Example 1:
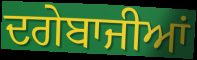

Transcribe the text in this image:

ਦਗੇਬਾਜੀਆਂ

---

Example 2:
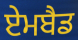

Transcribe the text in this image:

ਏਮਬੈਡ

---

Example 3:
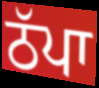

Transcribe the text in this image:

ਠੱਪਾ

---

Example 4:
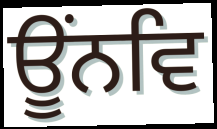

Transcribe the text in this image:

ਊਂਨਵਿ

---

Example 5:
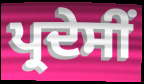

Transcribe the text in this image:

ਪ੍ਰਦੇਸੀਂ